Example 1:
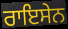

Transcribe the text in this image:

ਰਾਇਸੇਨ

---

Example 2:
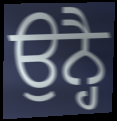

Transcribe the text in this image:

ਉਨ੍ਹੈ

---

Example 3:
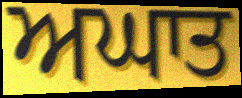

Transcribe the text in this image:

ਅਘਾਤ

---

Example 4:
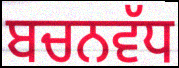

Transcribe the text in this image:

ਬਚਨਵੱਧ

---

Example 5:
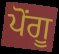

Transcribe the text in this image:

ਪੋਂਗੂ